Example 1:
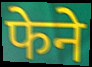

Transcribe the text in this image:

फेने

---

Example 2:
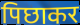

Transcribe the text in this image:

पिछाकर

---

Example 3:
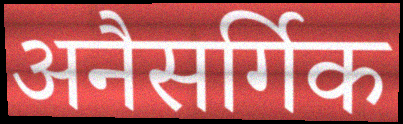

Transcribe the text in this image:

अनैसर्गिक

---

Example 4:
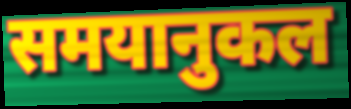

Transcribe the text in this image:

समयानुकल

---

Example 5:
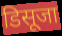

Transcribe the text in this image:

डिसूजा